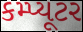
કમ્પ્યૂટર